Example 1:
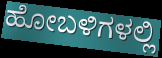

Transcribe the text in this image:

ಹೋಬಳಿಗಳಲ್ಲಿ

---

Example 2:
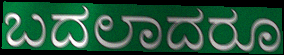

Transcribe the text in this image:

ಬದಲಾದರೂ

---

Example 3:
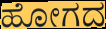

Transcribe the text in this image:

ಹೋಗದ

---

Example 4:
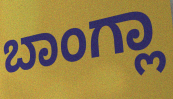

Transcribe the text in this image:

ಬಾಂಗ್ಲಾ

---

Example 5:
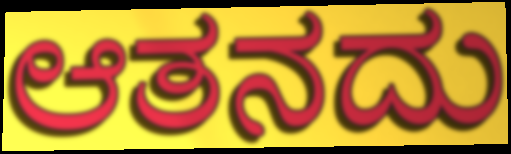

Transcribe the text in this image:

ಆತನದು